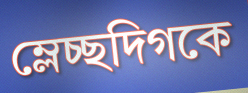
ম্লেচ্ছদিগকে